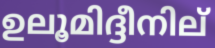
ഉലൂമിദ്ദീനില്